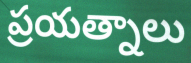
ప్రయత్నాలు